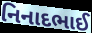
નિનાદભાઈ